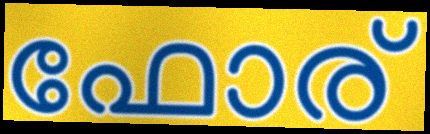
ഫോര്